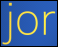
jor